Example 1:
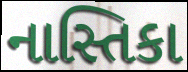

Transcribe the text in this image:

નાસ્તિકા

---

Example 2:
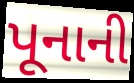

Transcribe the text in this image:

પૂનાની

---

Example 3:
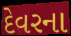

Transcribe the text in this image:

દેવરના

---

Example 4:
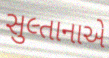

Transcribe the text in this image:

સુલ્તાનાએ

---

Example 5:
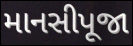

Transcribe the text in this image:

માનસીપૂજા